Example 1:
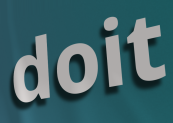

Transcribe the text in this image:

doit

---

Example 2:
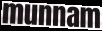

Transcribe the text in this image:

munnam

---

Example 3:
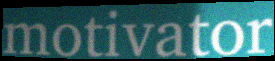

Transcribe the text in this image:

motivator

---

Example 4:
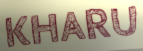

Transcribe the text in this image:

KHARU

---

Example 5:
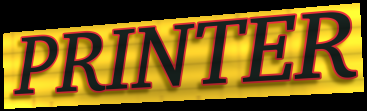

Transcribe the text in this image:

PRINTER